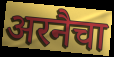
अरनैचा